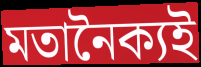
মতানৈক্যই